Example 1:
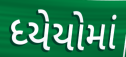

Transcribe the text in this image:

ધ્યેયોમાં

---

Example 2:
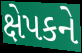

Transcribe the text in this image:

ક્ષેપકને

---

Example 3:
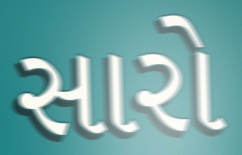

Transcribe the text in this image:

સારો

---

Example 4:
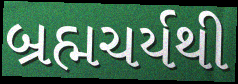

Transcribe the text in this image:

બ્રહ્મચર્યથી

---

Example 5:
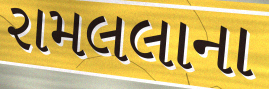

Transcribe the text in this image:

રામલલાના